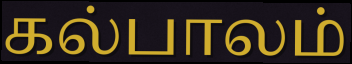
கல்பாலம்